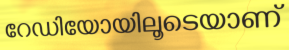
റേഡിയോയിലൂടെയാണ്